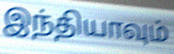
இந்தியாவும்